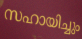
സഹായിച്ചും